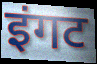
इंगट